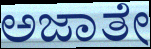
ಅಜಾತೇ